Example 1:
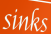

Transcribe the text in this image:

sinks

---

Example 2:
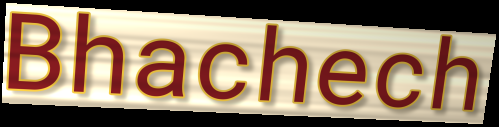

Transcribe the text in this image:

Bhachech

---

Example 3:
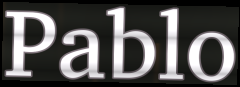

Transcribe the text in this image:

Pablo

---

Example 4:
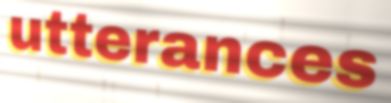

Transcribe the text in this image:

utterances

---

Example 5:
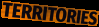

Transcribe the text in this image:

TERRITORIES